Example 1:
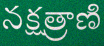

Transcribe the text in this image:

నక్షత్రాణి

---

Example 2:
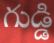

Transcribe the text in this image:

గుడ్డి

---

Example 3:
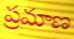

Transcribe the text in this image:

ప్రమాణ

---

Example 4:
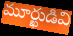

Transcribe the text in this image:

మూర్ఖుడివి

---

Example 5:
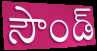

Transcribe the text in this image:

సౌండ్